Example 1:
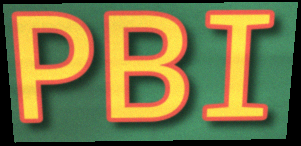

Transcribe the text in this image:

PBI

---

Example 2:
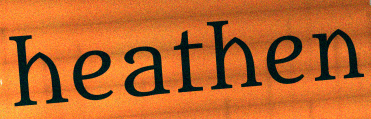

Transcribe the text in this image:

heathen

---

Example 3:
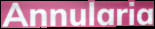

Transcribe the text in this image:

Annularia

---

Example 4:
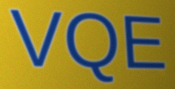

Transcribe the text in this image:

VQE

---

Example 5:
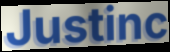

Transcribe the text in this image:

Justinc